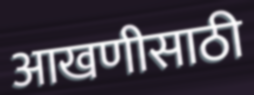
आखणीसाठी